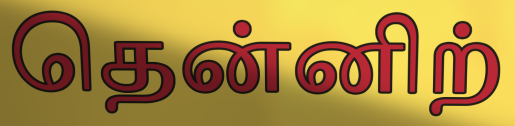
தென்னிற்